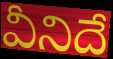
వీనిదే